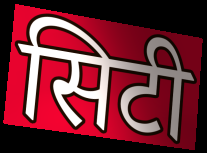
सिटी